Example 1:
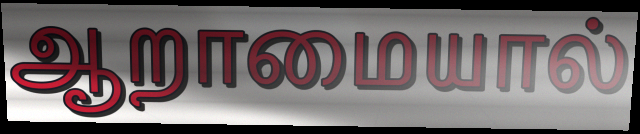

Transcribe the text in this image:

ஆறாமையால்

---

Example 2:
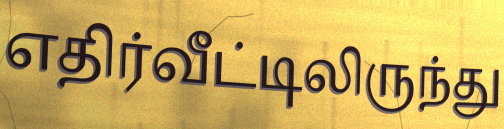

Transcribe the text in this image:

எதிர்வீட்டிலிருந்து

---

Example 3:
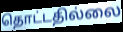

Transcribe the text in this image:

தொட்டதில்லை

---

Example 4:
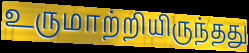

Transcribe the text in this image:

உருமாற்றியிருந்தது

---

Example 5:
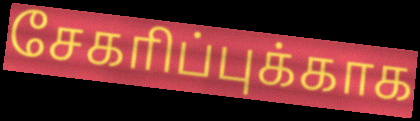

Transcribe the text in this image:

சேகரிப்புக்காக